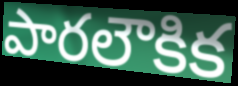
పారలౌకిక